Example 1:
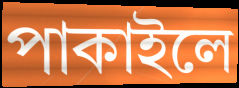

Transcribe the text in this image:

পাকাইলে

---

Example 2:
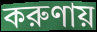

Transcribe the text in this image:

করুণায়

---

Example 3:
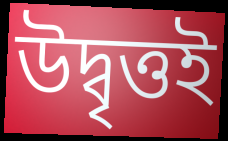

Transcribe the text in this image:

উদ্বৃত্তই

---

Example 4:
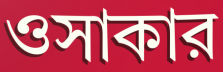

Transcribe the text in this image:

ওসাকার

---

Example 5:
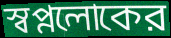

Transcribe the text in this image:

স্বপ্নলোকের